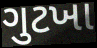
ગુટખા